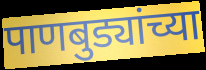
पाणबुड्यांच्या